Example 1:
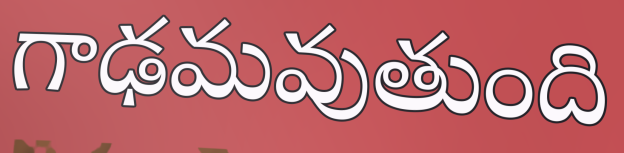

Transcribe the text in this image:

గాఢమవుతుంది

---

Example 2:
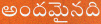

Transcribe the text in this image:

అందమైనది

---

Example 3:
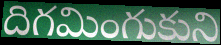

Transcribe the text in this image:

దిగమింగుకుని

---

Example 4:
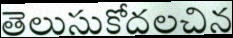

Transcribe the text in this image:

తెలుసుకోదలచిన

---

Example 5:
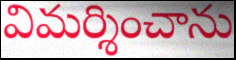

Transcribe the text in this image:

విమర్శించాను